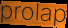
prolap